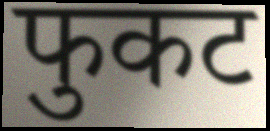
फुकट